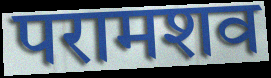
परामशव